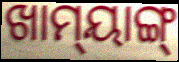
ଖାମ୍‌ୟାଙ୍ଗ୍